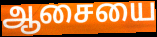
ஆசையை